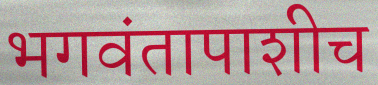
भगवंतापाशीच